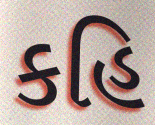
કહિ